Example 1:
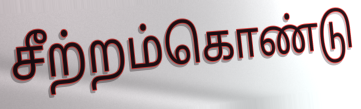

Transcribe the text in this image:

சீற்றம்கொண்டு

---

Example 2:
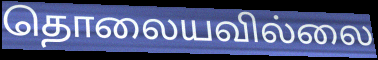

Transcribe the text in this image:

தொலையவில்லை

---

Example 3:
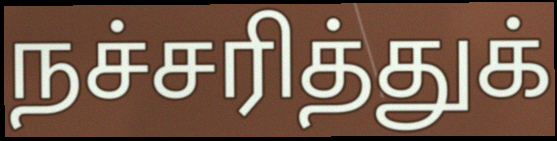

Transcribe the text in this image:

நச்சரித்துக்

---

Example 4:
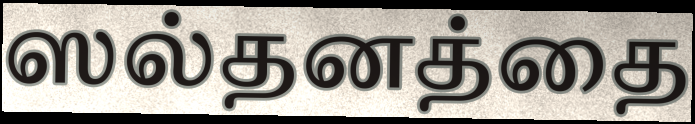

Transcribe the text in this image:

ஸல்தனத்தை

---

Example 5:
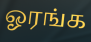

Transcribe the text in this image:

ஓரங்க